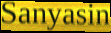
Sanyasin